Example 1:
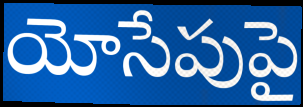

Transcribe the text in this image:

యోసేపుపై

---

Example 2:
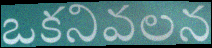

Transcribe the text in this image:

ఒకనివలన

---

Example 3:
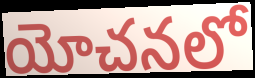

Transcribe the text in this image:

యోచనలో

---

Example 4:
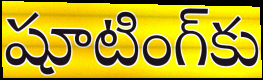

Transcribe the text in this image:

షూటింగ్‌కు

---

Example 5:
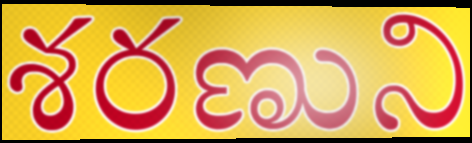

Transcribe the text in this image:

శరణుని